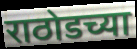
राठोडच्या